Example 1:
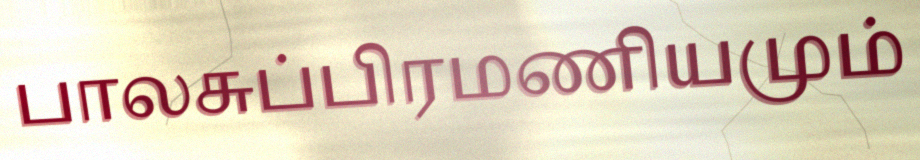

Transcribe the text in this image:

பாலசுப்பிரமணியமும்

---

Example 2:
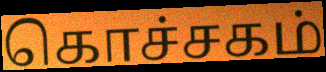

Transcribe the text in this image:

கொச்சகம்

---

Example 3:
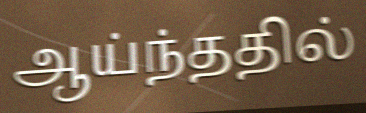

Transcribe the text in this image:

ஆய்ந்ததில்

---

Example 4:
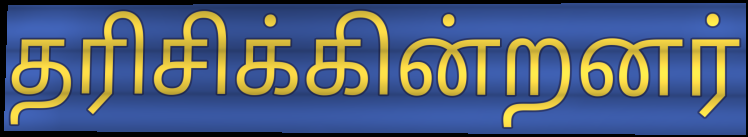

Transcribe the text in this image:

தரிசிக்கின்றனர்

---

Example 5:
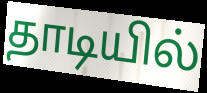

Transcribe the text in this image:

தாடியில்